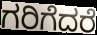
ಗರಿಗೆದರೆ